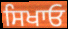
ਸਿਖਾਓ